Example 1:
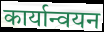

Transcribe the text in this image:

कार्यान्वयन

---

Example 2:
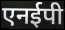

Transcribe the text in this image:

एनईपी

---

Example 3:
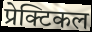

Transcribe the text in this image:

प्रेक्टिकल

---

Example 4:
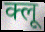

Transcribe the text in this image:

क्लू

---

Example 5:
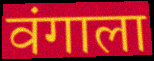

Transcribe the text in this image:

वंगाला